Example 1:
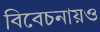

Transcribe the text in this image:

বিবেচনায়ও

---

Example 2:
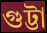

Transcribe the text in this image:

গুট্টা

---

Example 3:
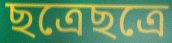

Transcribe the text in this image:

ছত্রেছত্রে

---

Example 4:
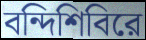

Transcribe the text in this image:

বন্দিশিবিরে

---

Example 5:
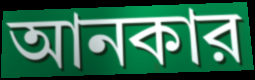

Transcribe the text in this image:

আনকার